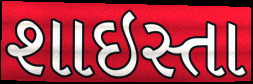
શાઇસ્તા